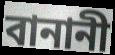
বানানী